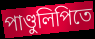
পাণ্ডুলিপিতে